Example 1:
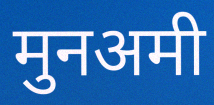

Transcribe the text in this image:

मुनअमी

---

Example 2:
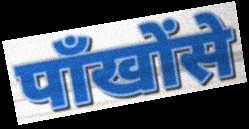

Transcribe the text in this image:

पाँखोंसे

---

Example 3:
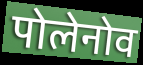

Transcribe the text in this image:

पोलेनोव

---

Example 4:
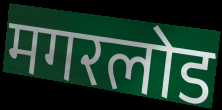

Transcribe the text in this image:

मगरलोड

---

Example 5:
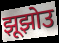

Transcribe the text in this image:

झूझोउ